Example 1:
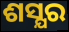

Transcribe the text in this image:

ଶସ୍ଯର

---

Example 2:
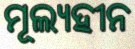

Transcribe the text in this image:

ମୂଲ୍ଯହୀନ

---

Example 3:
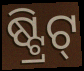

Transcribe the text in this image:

ଷ୍ଟ୍ରିଟ୍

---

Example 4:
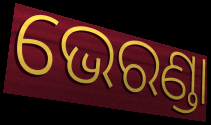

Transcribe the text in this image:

ଭେରଣ୍ଡା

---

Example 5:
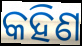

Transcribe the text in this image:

କହିଣ